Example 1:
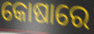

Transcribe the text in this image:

କୋଷାରେ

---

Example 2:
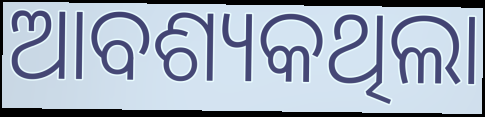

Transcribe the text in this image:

ଆବଶ୍ୟକଥିଲା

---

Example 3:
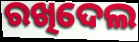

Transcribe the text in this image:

ରଖିଦେଲ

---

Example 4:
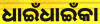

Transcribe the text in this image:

ଧାଇଁଧାଇଁକା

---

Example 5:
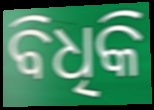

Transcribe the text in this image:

ବିଧିକି